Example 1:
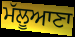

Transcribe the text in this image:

ਮੱਲੂਆਣਾ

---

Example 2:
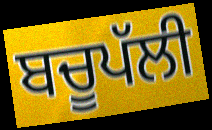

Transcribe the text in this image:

ਬਚੂਪੱਲੀ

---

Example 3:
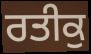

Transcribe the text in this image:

ਰਤੀਕੁ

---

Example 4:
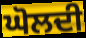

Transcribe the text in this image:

ਘੋਲਦੀ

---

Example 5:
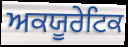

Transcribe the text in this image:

ਅਕਯੂਰੇਟਿਕ